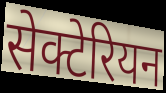
सेक्टेरियन